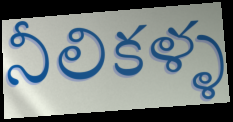
నీలికళ్ళ